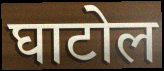
घाटोल